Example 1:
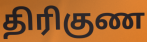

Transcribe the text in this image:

திரிகுண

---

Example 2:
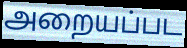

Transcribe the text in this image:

அறையப்பட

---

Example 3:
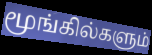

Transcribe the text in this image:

மூங்கில்களும்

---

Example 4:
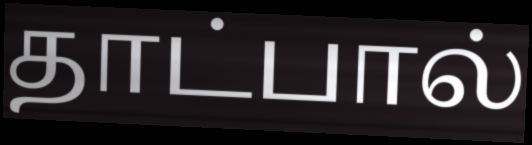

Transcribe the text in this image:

தாட்பால்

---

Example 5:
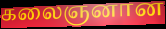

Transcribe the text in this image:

கலைஞனான